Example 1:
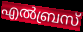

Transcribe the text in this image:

എൽബ്രസ്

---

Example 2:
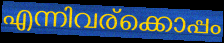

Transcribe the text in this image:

എന്നിവര്ക്കൊപ്പം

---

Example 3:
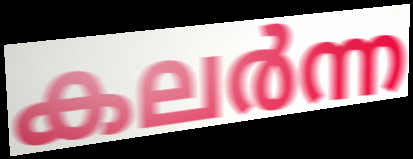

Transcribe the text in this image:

കലർന്ന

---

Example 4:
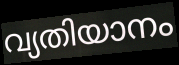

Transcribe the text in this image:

വ്യതിയാനം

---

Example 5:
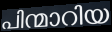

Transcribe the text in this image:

പിന്മാറിയ